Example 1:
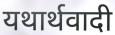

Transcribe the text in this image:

यथार्थवादी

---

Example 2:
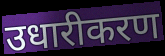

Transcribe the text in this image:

उधारीकरण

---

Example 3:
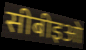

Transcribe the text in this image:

सीबीइओ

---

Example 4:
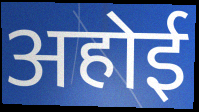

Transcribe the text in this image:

अहोई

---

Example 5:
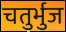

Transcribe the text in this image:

चतुर्भुज